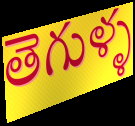
తెగుళ్ళ